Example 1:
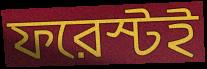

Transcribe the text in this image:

ফরেস্টই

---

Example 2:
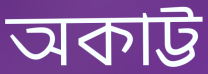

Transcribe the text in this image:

অকাট্ট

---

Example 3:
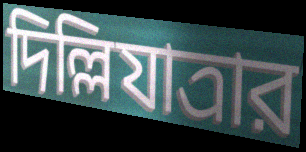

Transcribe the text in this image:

দিল্লিযাত্রার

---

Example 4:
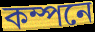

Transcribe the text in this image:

কম্পনে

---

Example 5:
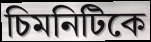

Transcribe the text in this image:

চিমনিটিকে